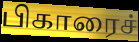
பிகாரைச்